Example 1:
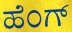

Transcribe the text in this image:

ಹೆಂಗ್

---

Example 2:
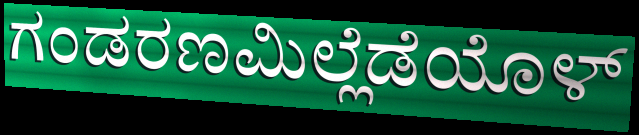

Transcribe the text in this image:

ಗಂಡರಣಮಿಲ್ಲೆಡೆಯೊಳ್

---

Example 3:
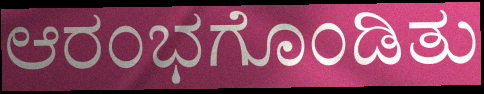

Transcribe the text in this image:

ಆರಂಭಗೊಂಡಿತು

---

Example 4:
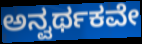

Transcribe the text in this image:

ಅನ್ವರ್ಥಕವೇ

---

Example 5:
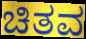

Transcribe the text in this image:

ಚಿತವ